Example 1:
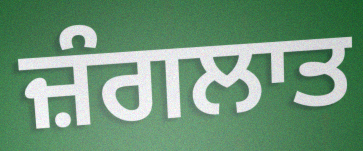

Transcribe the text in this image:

ਜ਼ੰਗਲਾਤ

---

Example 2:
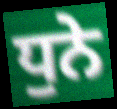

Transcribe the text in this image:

ਧੁਨੇ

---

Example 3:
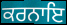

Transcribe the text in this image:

ਕਰਨਾਇ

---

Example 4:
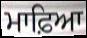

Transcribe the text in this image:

ਮਾਫ਼ਿਆ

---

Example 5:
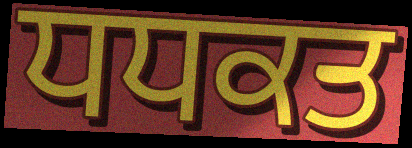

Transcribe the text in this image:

ਧਧਕਤ